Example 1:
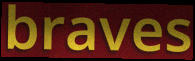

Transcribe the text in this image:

braves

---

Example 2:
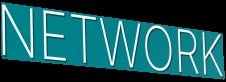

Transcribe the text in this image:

NETWORK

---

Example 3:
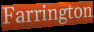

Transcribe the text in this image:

Farrington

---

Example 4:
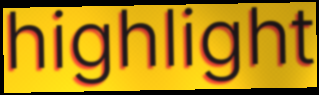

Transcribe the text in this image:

highlight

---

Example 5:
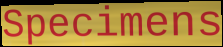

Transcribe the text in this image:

Specimens